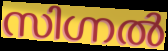
സിഗ്നൽ